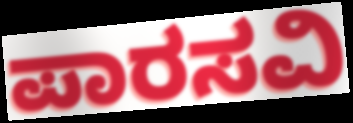
ಪಾರಸವಿ